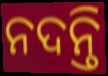
ନଦନ୍ତି